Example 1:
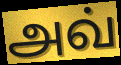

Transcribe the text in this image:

அவ்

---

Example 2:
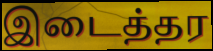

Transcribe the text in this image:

இடைத்தர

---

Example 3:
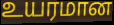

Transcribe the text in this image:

உயரமான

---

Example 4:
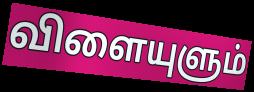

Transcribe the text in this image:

விளையுளும்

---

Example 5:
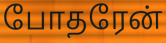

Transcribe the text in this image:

போதரேன்